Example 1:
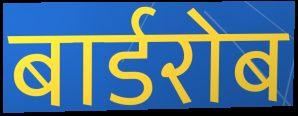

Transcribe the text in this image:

बार्डरोब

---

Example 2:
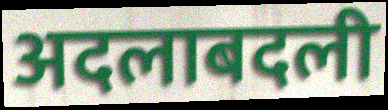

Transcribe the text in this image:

अदलाबदली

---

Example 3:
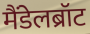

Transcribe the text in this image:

मैंडेलब्रॉट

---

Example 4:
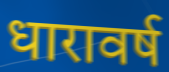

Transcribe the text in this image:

धारावर्ष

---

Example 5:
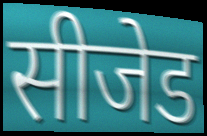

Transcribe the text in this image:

सीजेड